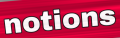
notions